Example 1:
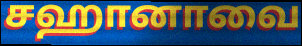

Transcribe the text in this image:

சஹானாவை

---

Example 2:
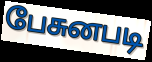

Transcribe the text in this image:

பேசுனபடி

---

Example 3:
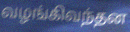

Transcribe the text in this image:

வழங்கிவந்தன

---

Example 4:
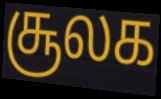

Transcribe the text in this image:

சூலக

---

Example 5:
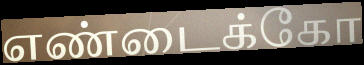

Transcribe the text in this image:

எண்டைக்கோ